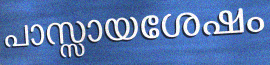
പാസ്സായശേഷം